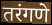
तरंगणे